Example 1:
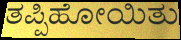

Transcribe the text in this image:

ತಪ್ಪಿಹೋಯಿತು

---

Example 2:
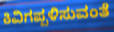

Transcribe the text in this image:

ಕಿವಿಗಪ್ಪಳಿಸುವಂತೆ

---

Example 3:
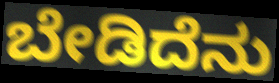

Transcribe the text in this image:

ಬೇಡಿದೆನು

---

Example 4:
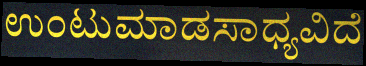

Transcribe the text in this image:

ಉಂಟುಮಾಡಸಾಧ್ಯವಿದೆ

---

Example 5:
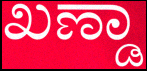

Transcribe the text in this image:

ಖಣ್ಡಾ